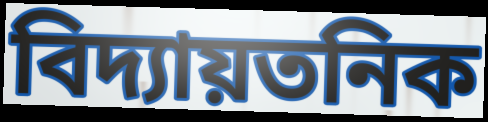
বিদ্যায়তনিক